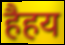
हैहय